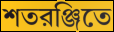
শতরঞ্জিতে